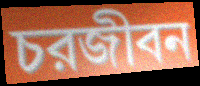
চরজীবন